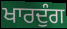
ਖਾਰਦੁੰਗ